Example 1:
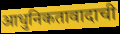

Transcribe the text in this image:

आधुनिकतावादाची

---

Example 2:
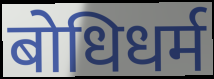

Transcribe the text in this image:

बोधिधर्म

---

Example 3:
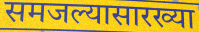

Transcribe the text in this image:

समजल्यासारख्या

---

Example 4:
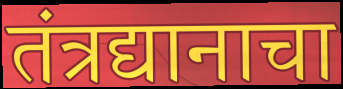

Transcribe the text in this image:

तंत्रद्यानाचा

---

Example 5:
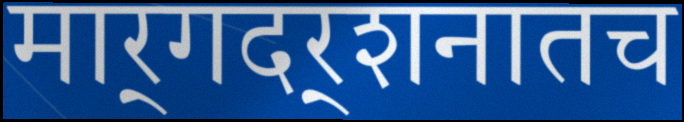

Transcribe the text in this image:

मार्गदर्शनातच